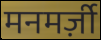
मनमर्ज़ी